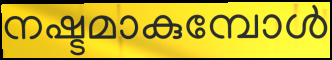
നഷ്ടമാകുമ്പോൾ